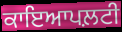
ਕਾਇਆਪਲ਼ਟੀ